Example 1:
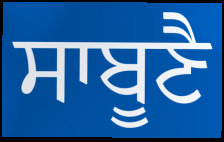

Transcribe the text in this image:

ਸਾਬੂਣੈ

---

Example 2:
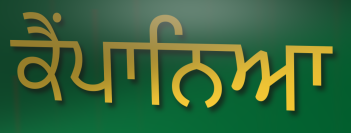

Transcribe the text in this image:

ਕੈਂਪਾਨਿਆ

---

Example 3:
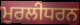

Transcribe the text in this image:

ਮੁਰਲੀਧਰਨ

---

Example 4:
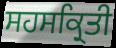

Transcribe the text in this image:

ਸਹਸਕ੍ਰਿਤੀ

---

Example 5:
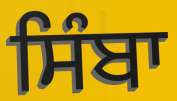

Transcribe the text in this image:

ਸਿੰਬਾ